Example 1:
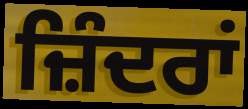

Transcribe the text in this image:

ਜ਼ਿੰਦਰਾਂ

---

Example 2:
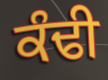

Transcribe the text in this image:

ਕੰਢੀ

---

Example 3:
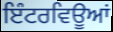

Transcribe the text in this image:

ਇੰਟਰਵਿਊਆਂ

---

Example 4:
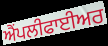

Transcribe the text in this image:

ਐੰਪਲੀਫਾਈਅਰ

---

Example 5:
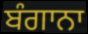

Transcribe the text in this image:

ਬੰਗਾਨਾ